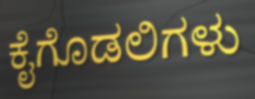
ಕೈಗೊಡಲಿಗಳು